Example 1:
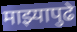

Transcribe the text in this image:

माझ्यापुढे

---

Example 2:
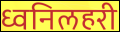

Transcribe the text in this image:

ध्वनिलहरी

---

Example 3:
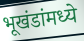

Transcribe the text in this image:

भूखंडांमध्ये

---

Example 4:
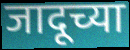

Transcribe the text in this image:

जादूच्या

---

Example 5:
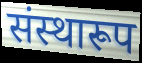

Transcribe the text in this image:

संस्थारूप